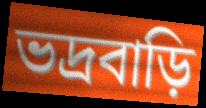
ভদ্রবাড়ি